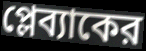
প্লেব্যাকের